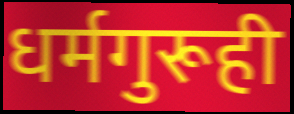
धर्मगुरूही